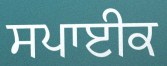
ਸਪਾਈਕ